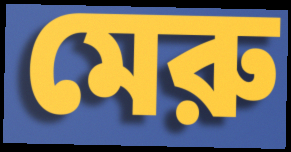
মেরু